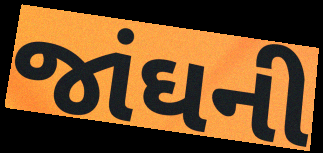
જાંઘની